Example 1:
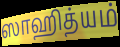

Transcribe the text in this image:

ஸாஹித்யம்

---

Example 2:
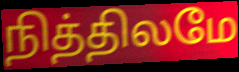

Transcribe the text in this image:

நித்திலமே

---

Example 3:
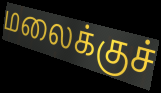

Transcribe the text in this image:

மலைக்குச்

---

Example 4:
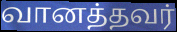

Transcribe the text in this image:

வானத்தவர்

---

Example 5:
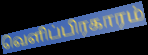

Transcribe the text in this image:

வெளிப்பிரகாரம்